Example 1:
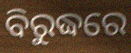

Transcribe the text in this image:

ବିରୁଦ୍ଧରେ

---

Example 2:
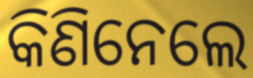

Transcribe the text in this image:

କିଣିନେଲେ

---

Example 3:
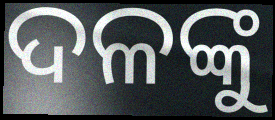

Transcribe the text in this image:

ଦଳଙ୍କୁ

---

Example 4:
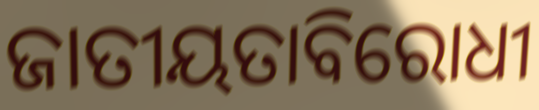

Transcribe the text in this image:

ଜାତୀୟତାବିରୋଧୀ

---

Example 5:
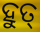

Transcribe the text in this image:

ହୁତ୍